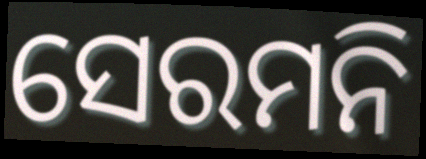
ସେରମନି